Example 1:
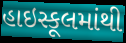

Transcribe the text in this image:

હાઇસ્કૂલમાંથી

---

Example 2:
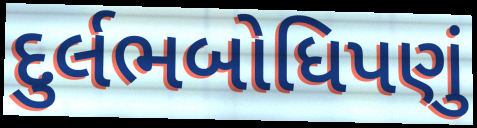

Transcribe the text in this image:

દુર્લભબોધિપણું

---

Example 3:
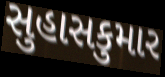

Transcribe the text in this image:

સુહાસકુમાર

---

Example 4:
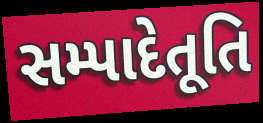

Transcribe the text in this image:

સમ્પાદેતૂતિ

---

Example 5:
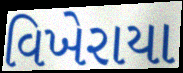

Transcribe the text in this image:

વિખેરાયા